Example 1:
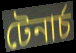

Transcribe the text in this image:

টেনাৰ্চ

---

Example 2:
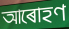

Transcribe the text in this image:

আৰোহণ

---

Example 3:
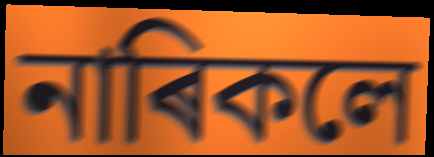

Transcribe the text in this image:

নাৰিকলে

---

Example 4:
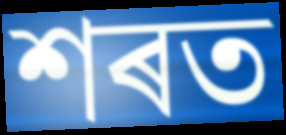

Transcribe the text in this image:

শৰত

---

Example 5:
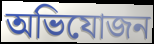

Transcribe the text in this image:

অভিযোজন